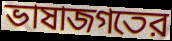
ভাষাজগতের